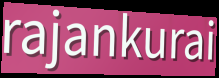
rajankurai